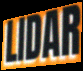
LIDAR